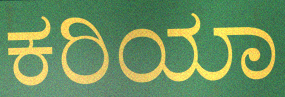
ಕರಿಯಾ